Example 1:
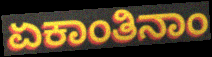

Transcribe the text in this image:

ಏಕಾಂತಿನಾಂ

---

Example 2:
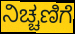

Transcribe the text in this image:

ನಿಚ್ಚಣಿಗೆ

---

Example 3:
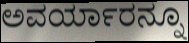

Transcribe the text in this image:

ಅವರ್ಯಾರನ್ನೂ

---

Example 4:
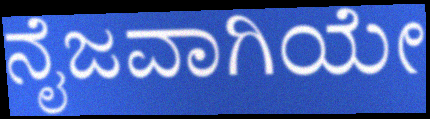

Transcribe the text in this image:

ನೈಜವಾಗಿಯೇ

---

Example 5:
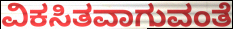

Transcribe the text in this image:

ವಿಕಸಿತವಾಗುವಂತೆ